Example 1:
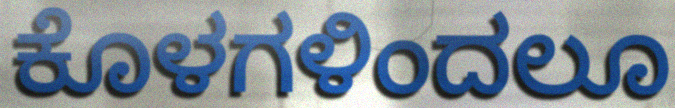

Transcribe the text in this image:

ಕೊಳಗಳಿಂದಲೂ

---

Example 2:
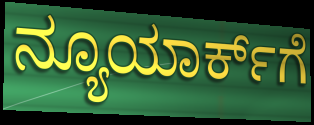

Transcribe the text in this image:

ನ್ಯೂಯಾರ್ಕ್‌ಗೆ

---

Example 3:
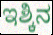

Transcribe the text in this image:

ಇಶ್ಕಿನ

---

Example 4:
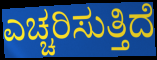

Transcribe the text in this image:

ಎಚ್ಚರಿಸುತ್ತಿದೆ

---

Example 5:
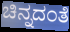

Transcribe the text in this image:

ಚಿನ್ನದಂತೆ